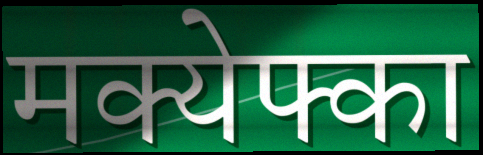
मक्येफ्का